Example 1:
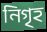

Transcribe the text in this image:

নিগৃহ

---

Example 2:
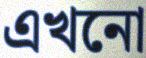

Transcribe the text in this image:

এখনো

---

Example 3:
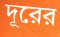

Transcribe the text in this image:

দূরের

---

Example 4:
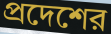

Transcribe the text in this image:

প্রদেশের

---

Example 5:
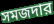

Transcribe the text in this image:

সমজদার